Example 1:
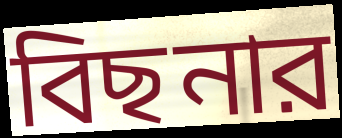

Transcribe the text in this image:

বিছনার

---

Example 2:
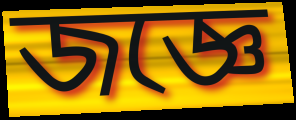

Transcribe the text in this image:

জজ্ঞে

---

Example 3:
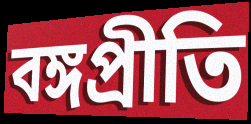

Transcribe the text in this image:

বঙ্গপ্রীতি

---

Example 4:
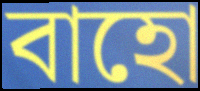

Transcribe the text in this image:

বাহো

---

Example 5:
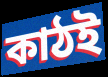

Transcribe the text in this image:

কাঠই